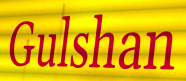
Gulshan